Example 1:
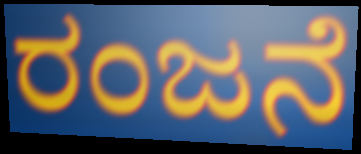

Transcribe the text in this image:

ರಂಜನೆ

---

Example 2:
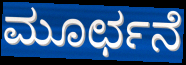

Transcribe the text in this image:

ಮೂರ್ಛನೆ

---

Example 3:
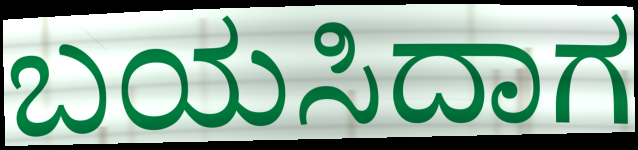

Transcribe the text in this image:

ಬಯಸಿದಾಗ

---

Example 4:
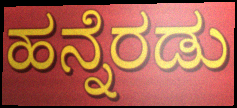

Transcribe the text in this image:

ಹನ್ನೆರಡು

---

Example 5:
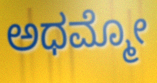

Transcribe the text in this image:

ಅಧಮ್ಮೋ